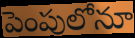
పెంపులోనూ